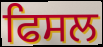
ਫਿਸਲ